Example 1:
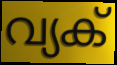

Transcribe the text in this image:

വ്യക്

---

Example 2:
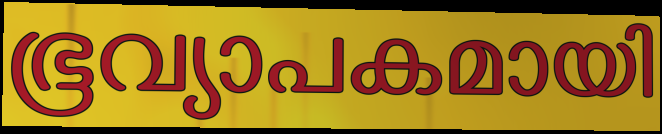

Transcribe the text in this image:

ഭൂവ്യാപകമായി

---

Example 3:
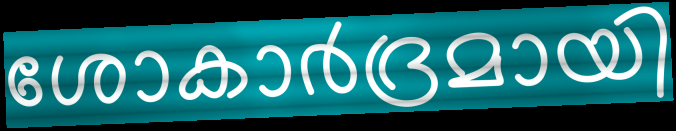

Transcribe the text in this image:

ശോകാർദ്രമായി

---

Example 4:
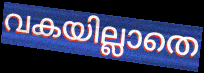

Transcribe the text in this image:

വകയില്ലാതെ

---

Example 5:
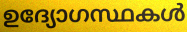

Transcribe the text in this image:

ഉദ്യോഗസ്ഥകൾ